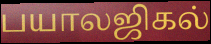
பயாலஜிகல்